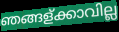
ഞങ്ങള്ക്കാവില്ല